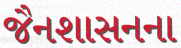
જૈનશાસનના